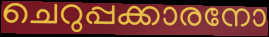
ചെറുപ്പക്കാരനോ